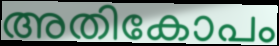
അതികോപം